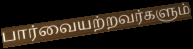
பார்வையற்றவர்களும்